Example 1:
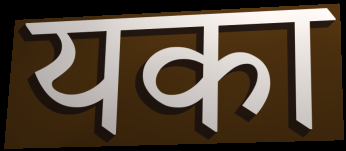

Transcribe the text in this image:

यका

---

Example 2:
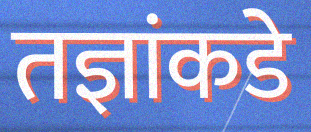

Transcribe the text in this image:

तज्ञांकडे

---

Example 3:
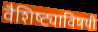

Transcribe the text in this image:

वैशिष्ट्याविषयी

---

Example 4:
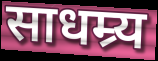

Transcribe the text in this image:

साधम्र्य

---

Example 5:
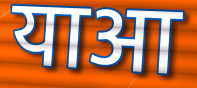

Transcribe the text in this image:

याआ